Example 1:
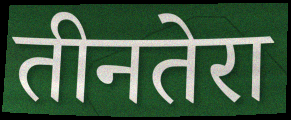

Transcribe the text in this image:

तीनतेरा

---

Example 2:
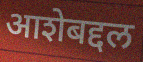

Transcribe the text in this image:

आशेबद्दल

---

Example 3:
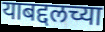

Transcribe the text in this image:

याबद्दलच्या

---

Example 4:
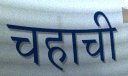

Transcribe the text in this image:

चहाची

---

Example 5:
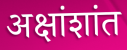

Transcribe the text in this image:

अक्षांशांत